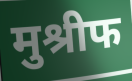
मुश्रीफ